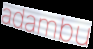
adambu